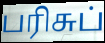
பரிசுப்